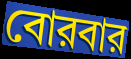
বোরবার